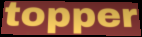
topper